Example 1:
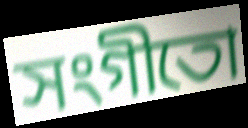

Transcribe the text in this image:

সংগীতো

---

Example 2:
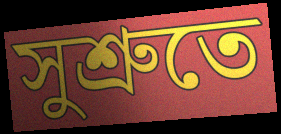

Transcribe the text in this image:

সুশ্ৰুতে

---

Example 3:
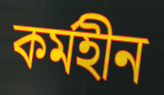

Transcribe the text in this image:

কৰ্মহীন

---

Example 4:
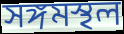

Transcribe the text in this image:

সঙ্গমস্থল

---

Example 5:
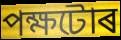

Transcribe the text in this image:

পক্ষটোৰ